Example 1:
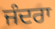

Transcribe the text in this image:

ਜੰਦਰਾ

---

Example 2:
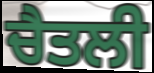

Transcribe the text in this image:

ਚੈਤਲੀ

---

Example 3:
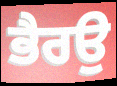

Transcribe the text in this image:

ਭੈਰਉ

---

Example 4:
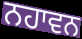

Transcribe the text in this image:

ਨਹਾਵਨ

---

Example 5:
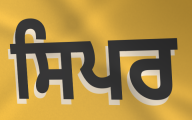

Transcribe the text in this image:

ਸਿਪਰ